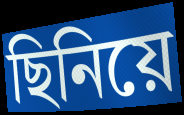
ছিনিয়ে